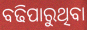
ବଢିପାରୁଥିବା